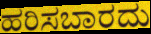
ಹರಿಸಬಾರದು